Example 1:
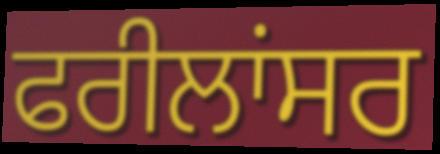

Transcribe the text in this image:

ਫਰੀਲਾਂਸਰ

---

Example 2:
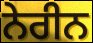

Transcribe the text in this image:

ਨੇਰੀਨ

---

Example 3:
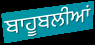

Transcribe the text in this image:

ਬਾਹੂਬਲੀਆਂ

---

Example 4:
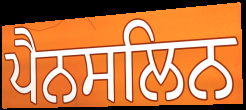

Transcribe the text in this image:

ਪੈਨਸਲਿਨ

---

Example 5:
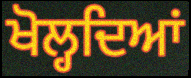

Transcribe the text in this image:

ਖੋਲ੍ਹਦਿਆਂ